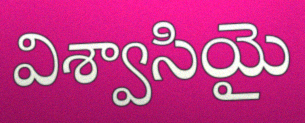
విశ్వాసియై